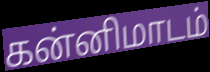
கன்னிமாடம்